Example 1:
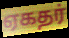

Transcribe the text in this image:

ஏகதர்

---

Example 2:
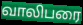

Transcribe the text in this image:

வாலிபரை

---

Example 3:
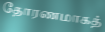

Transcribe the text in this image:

தோரணமாகத்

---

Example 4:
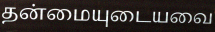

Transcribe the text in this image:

தன்மையுடையவை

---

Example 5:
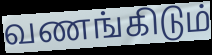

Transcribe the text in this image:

வணங்கிடும்